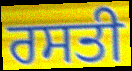
ਰਸਤੀ